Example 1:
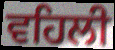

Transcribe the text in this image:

ਵਹਿਲੀ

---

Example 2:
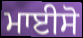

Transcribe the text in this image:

ਮਾਈਸੋ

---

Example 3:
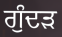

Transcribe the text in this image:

ਗੁੰਦੜ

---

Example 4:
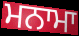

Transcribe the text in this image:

ਮਨਾਮਾ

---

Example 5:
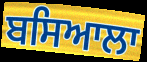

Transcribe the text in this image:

ਬਸਿਆਲਾ